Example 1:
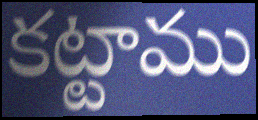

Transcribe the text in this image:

కట్టాము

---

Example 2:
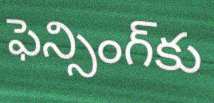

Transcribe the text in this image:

ఫెన్సింగ్‌కు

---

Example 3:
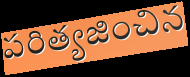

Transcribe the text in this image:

పరిత్యజించిన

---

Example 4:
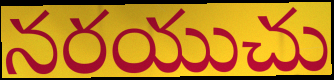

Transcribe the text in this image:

నరయుచు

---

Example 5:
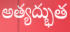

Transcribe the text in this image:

అత్యద్భుత